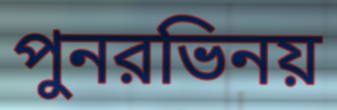
পুনরভিনয়